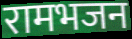
रामभजन